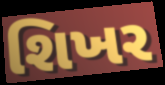
શિખર